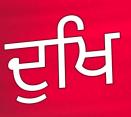
ਦੁਖਿ